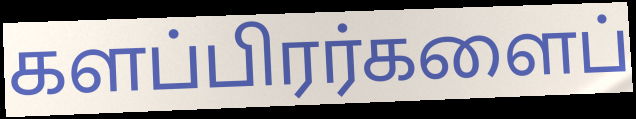
களப்பிரர்களைப்